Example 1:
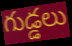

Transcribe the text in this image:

గుడ్డలు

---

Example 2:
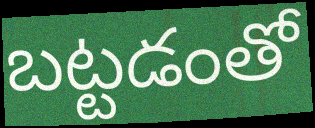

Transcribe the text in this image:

బట్టడంతో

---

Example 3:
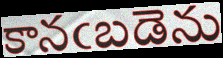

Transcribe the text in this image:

కానఁబడెను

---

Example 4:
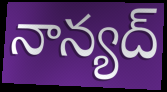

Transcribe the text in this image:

నాన్యద్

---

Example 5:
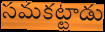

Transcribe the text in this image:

సమకట్టాడు